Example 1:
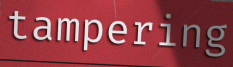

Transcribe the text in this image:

tampering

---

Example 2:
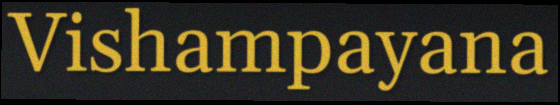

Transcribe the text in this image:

Vishampayana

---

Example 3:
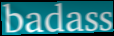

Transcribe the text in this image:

badass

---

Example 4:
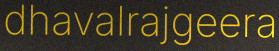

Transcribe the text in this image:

dhavalrajgeera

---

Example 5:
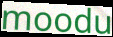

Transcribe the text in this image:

moodu